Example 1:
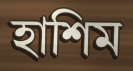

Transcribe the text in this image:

হাশিম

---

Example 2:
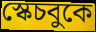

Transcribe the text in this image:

স্কেচবুকে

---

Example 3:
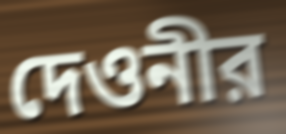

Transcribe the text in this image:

দেওনীর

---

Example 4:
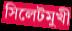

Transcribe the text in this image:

সিলেটমুখী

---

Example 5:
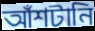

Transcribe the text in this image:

আঁশটানি